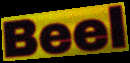
Beel